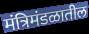
मंत्रिमंडळातील